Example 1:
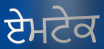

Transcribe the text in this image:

ਏਮਟੇਕ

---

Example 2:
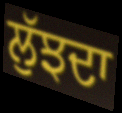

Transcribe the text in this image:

ਲੁੱਝਦਾ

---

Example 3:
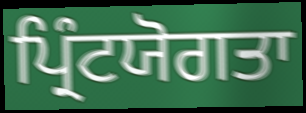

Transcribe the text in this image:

ਪ੍ਰਿੰਟਯੋਗਤਾ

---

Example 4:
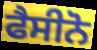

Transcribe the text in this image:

ਫੈਸੀਨੋ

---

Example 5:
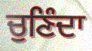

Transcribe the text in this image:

ਚੁਣਿੰਦਾ